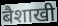
बैशाखी